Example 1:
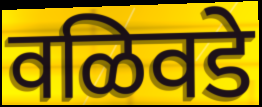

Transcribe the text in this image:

वळिवडे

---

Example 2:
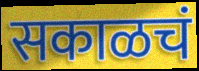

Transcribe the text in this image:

सकाळचं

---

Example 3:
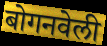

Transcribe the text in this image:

बोगनवेली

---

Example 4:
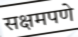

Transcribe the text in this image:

सक्षमपणे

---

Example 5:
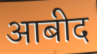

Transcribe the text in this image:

आबीद